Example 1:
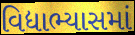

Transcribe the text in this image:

વિદ્યાભ્યાસમાં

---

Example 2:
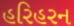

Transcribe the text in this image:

હરિહરન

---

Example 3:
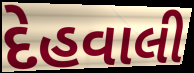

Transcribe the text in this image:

દેહવાલી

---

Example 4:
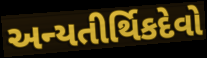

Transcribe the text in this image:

અન્યતીર્થિકદેવો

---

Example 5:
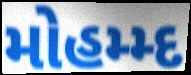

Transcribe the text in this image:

મોહમ્મ્દ